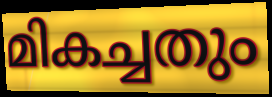
മികച്ചതും